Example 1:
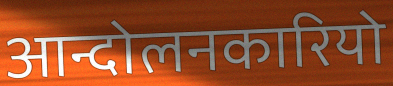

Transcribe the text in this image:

आन्दोलनकारियो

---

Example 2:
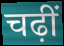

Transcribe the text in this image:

चढ़ीं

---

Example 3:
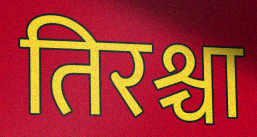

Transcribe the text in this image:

तिरश्चा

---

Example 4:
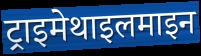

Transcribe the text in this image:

ट्राइमेथाइलमाइन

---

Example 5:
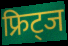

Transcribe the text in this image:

फ्रिट्ज